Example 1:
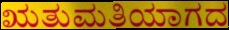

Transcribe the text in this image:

ಋತುಮತಿಯಾಗದ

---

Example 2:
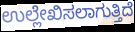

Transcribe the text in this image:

ಉಲ್ಲೇಖಿಸಲಾಗುತ್ತಿದೆ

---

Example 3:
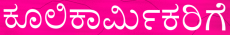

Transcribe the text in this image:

ಕೂಲಿಕಾರ್ಮಿಕರಿಗೆ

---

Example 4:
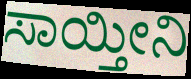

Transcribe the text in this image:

ಸಾಯ್ತೀನಿ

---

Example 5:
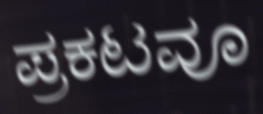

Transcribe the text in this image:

ಪ್ರಕಟವೂ